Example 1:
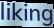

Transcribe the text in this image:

liking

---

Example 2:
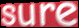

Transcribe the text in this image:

sure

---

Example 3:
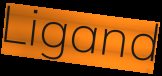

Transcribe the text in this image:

Ligand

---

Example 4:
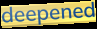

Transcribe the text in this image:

deepened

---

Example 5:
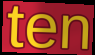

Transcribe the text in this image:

ten